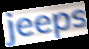
jeeps